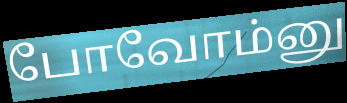
போவோம்னு